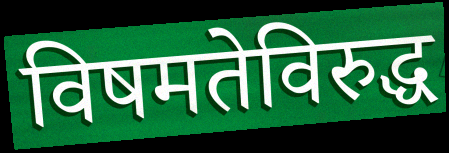
विषमतेविरुद्ध